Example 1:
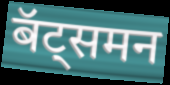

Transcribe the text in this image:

बॅट्समन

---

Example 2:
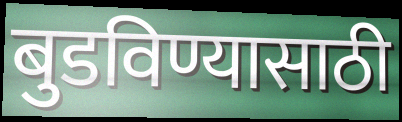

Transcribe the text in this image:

बुडविण्यासाठी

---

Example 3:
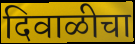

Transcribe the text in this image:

दिवाळीचा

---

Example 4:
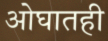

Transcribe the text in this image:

ओघातही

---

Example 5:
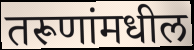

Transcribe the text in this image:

तरूणांमधील